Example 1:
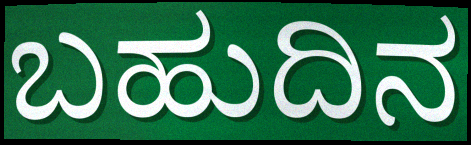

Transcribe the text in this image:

ಬಹುದಿನ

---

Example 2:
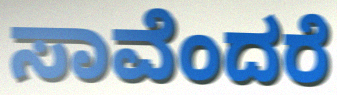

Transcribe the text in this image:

ಸಾವೆಂದರೆ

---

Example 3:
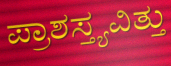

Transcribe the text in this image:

ಪ್ರಾಶಸ್ತ್ಯವಿತ್ತು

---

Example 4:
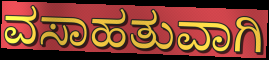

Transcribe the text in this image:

ವಸಾಹತುವಾಗಿ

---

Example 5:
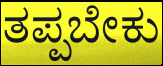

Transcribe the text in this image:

ತಪ್ಪಬೇಕು